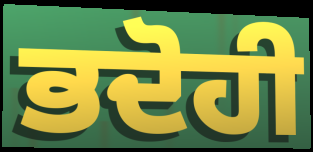
ਭਦੋਹੀ